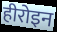
हीरोइन